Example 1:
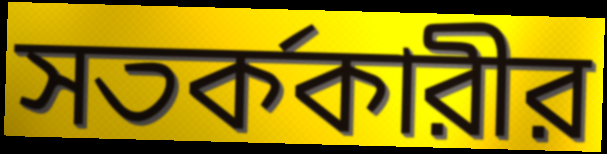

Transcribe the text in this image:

সতর্ককারীর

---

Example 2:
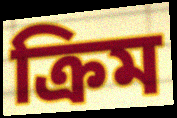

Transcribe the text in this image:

ক্রিম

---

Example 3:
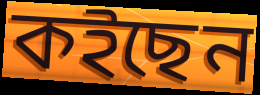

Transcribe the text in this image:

কইছেন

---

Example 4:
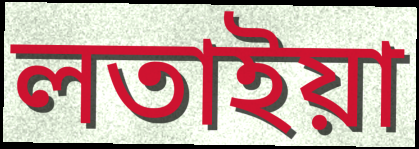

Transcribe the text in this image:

লতাইয়া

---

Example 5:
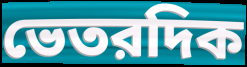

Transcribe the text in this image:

ভেতরদিক